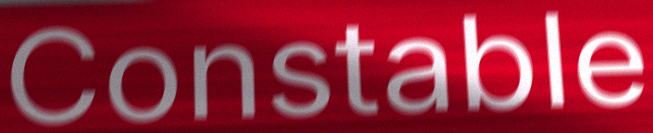
Constable